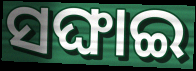
ସଙ୍ଘାଇ